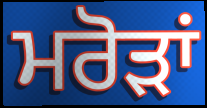
ਮਰੋੜਾਂ